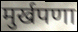
मुर्खपणा